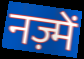
नज़्में